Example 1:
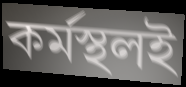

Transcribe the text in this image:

কর্মস্থলই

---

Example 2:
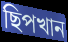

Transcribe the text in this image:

ছিপখান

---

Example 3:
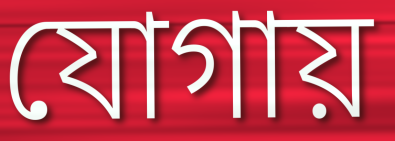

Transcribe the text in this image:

যোগায়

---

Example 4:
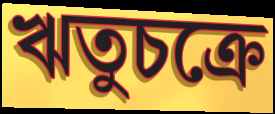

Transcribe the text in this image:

ঋতুচক্রে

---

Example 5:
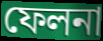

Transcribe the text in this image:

ফেলনা